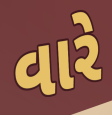
વારે